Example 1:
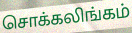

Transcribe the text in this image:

சொக்கலிங்கம்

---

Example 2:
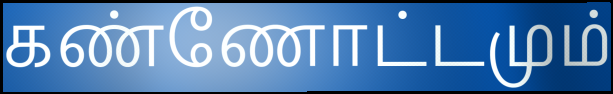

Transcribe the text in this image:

கண்ணோட்டமும்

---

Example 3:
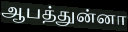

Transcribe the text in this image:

ஆபத்துன்னா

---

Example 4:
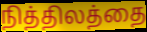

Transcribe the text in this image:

நித்திலத்தை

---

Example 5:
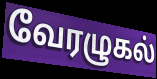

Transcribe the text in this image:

வேரழுகல்